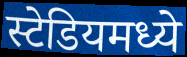
स्टेडियमध्ये